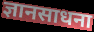
ज्ञानसाधना